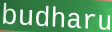
budharu